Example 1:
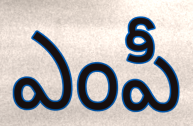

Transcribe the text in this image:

ఎంపీ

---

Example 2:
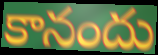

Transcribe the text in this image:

కానందు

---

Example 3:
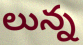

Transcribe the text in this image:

లున్న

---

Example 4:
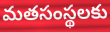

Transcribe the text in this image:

మతసంస్థలకు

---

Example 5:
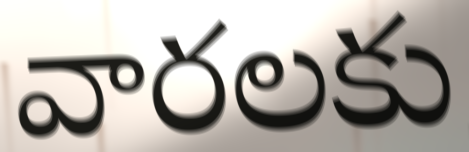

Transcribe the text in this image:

వారలకు